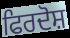
ਫਿਰਦੋਸ਼